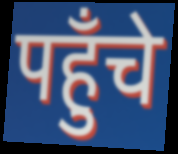
पहुँचे